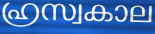
ഹ്രസ്വകാല